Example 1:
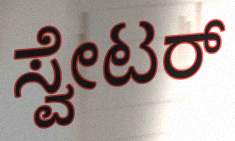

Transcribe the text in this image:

ಸ್ವೇಟರ್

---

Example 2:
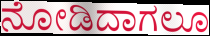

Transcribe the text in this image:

ನೋಡಿದಾಗಲೂ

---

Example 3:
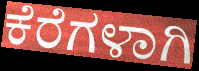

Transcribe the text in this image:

ಕೆರೆಗಳಾಗಿ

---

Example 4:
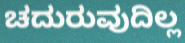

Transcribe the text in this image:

ಚದುರುವುದಿಲ್ಲ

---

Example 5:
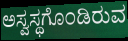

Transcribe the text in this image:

ಅಸ್ವಸ್ಥಗೊಂಡಿರುವ